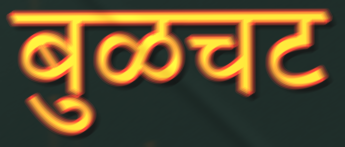
बुळचट